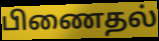
பிணைதல்